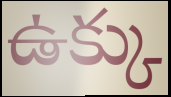
ఉక్కు